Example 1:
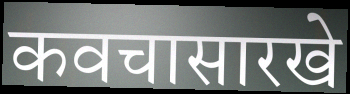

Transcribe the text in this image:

कवचासारखे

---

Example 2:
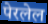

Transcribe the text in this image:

पेरलेल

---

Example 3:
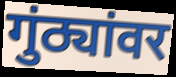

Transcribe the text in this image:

गुंठ्यांवर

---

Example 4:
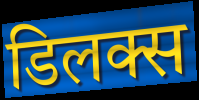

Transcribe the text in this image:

डिलक्स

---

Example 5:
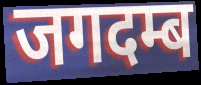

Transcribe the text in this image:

जगदम्ब